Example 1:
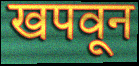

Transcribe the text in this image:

खपवून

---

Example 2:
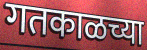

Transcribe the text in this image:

गतकाळच्या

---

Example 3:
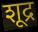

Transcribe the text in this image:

शूद्र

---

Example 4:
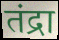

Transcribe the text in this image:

तंद्रा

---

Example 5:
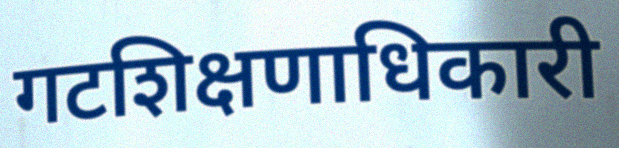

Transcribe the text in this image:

गटशिक्षणाधिकारी